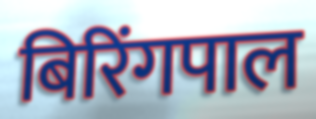
बिरिंगपाल